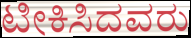
ಟೀಕಿಸಿದವರು